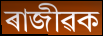
ৰাজীৱক